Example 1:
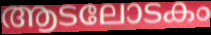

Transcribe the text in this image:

ആടലോടകം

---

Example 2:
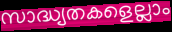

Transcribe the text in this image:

സാദ്ധ്യതകളെല്ലാം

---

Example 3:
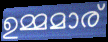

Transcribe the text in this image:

ഉമ്മമാര്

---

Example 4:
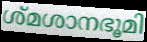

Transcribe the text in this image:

ശ്മശാനഭൂമി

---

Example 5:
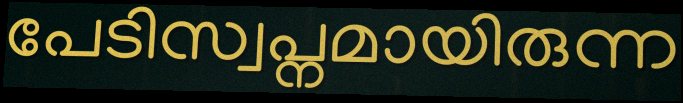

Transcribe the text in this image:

പേടിസ്വപ്നമായിരുന്ന